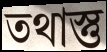
তথাস্তু